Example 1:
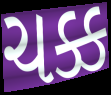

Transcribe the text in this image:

ચક્ક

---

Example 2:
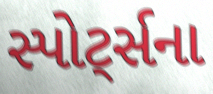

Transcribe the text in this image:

સ્પોર્ટ્સના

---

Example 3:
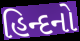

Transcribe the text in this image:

હિન્દનો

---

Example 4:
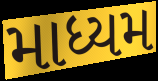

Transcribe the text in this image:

માધ્યમ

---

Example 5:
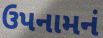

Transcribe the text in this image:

ઉપનામનં